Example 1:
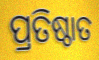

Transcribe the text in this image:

ପ୍ରତିଷ୍ଠାତ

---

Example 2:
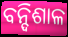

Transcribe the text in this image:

ବନ୍ଦିଶାଳ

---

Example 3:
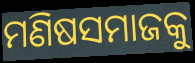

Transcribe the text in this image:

ମଣିଷସମାଜକୁ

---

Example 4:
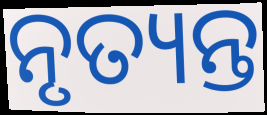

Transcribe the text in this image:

ନୃତ୍ୟନ୍ତ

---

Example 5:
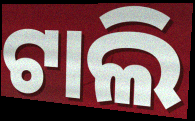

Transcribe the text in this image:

ଟାଲି